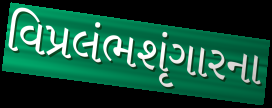
વિપ્રલંભશૃંગારના